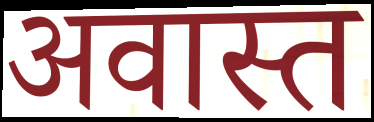
अवास्त